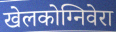
खेलकोग्निवेरा